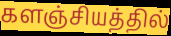
களஞ்சியத்தில்